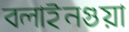
বলাইনগুয়া